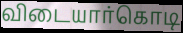
விடையார்கொடி